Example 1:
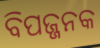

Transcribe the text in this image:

ବିପଜ୍ଜନକ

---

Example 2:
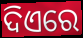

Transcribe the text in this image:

ଦିଏରେ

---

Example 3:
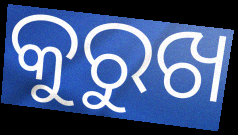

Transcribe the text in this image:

କୁରୁଖ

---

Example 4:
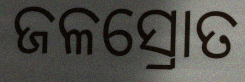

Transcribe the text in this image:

ଜଳସ୍ରୋତ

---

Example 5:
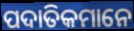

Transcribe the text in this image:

ପଦାତିକମାନେ